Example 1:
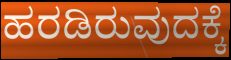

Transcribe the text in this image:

ಹರಡಿರುವುದಕ್ಕೆ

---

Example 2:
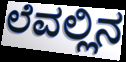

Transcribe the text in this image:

ಲೆವಲ್ಲಿನ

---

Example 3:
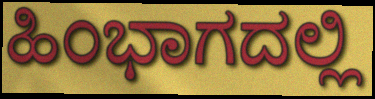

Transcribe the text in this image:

ಹಿಂಭಾಗದಲ್ಲಿ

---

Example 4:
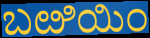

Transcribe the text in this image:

ಬೞಿಯಿಂ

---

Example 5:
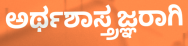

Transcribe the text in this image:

ಅರ್ಥಶಾಸ್ತ್ರಜ್ಞರಾಗಿ